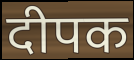
दीपक